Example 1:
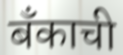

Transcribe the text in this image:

बँकाची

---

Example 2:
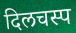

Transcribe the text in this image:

दिलचस्प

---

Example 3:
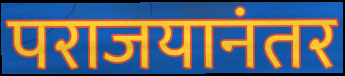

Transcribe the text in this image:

पराजयानंतर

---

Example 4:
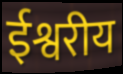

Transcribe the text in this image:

ईश्वरीय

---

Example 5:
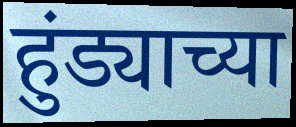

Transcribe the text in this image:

हुंड्याच्या